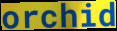
orchid